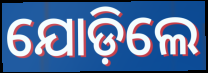
ଯୋଡ଼ିଲେ